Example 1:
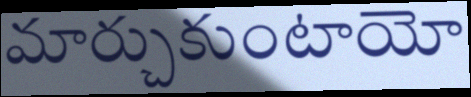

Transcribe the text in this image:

మార్చుకుంటాయో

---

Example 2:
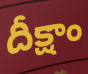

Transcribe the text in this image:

దీక్షాం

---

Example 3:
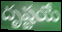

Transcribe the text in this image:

దృష్టయే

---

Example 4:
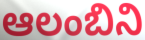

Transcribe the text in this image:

ఆలంబిని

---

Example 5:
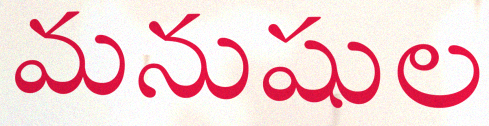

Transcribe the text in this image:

మనుషుల